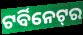
ଟର୍ବିନେଟ୍‌ର